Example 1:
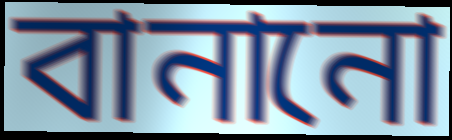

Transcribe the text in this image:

বানানো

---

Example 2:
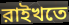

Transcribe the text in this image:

রাইখতে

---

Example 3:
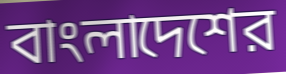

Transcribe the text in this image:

বাংলাদেশের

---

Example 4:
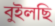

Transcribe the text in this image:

বুইলছি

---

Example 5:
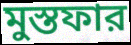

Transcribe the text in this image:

মুস্তফার